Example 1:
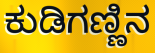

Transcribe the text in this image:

ಕುಡಿಗಣ್ಣಿನ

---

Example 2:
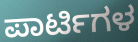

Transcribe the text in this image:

ಪಾರ್ಟಿಗಳ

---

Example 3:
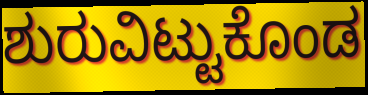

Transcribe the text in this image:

ಶುರುವಿಟ್ಟುಕೊಂಡ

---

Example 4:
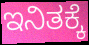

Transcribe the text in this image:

ಇನಿತಕ್ಕೆ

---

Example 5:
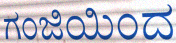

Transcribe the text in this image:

ಗಂಜಿಯಿಂದ